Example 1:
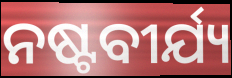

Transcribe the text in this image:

ନଷ୍ଟବୀର୍ଯ୍ୟ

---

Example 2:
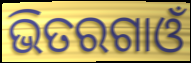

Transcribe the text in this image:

ଭିତରଗାଓଁ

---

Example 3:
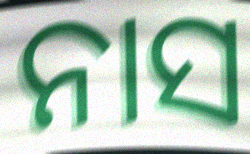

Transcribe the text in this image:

ନାସ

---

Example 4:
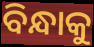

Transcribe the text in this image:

ବିନ୍ଧାକୁ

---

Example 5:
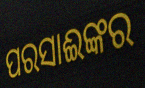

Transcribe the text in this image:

ପରସାଈଙ୍କର